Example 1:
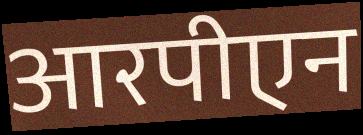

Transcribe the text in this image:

आरपीएन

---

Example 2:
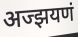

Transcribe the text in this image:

अज्झयणं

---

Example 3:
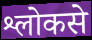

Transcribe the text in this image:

श्लोकसे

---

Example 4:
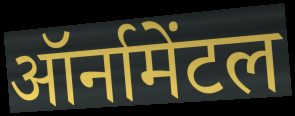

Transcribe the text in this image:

ऑर्नामेंटल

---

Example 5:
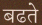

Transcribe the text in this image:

बढते